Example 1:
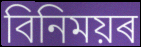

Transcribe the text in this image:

বিনিময়ৰ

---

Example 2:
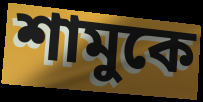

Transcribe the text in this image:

শামুকে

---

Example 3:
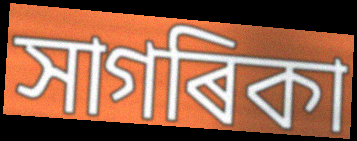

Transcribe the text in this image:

সাগৰিকা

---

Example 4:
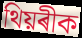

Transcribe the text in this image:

থিয়ৰীক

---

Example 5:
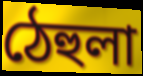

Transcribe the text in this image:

ঠেহুলা